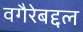
वगैरेबद्दल